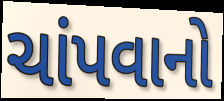
ચાંપવાનો